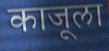
काजूला